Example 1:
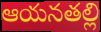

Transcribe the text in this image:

ఆయనతల్లి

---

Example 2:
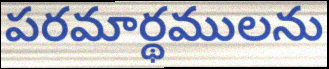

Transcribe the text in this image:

పరమార్థములను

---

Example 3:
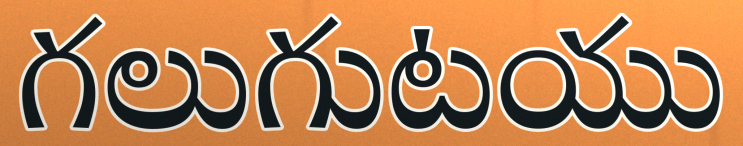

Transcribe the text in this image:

గలుగుటయు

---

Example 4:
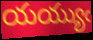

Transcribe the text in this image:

యయ్యుఁ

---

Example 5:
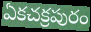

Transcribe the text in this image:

ఏకచక్రపురం